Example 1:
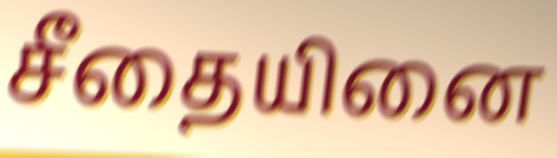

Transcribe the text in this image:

சீதையினை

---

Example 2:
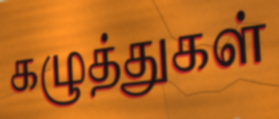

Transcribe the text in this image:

கழுத்துகள்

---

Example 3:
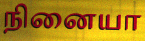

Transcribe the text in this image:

நினையா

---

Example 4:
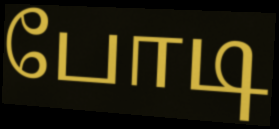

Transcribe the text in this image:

போடி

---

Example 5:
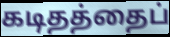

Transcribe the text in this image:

கடிதத்தைப்